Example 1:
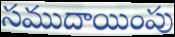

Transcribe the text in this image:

సముదాయింపు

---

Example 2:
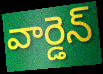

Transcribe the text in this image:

వార్డెన్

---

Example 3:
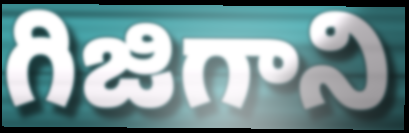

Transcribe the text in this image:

గిజిగాని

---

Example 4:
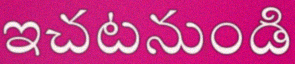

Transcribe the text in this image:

ఇచటనుండి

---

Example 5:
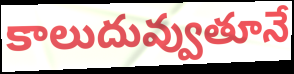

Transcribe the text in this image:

కాలుదువ్వుతూనే